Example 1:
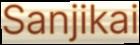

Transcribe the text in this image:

Sanjikai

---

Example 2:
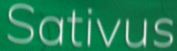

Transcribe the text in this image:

Sativus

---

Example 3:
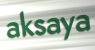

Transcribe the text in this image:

aksaya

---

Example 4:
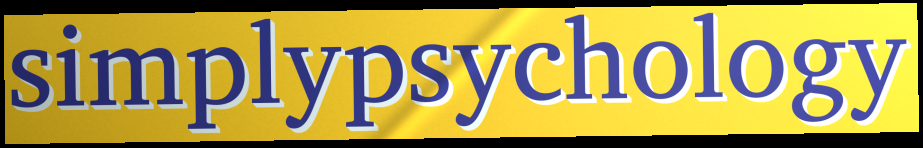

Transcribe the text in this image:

simplypsychology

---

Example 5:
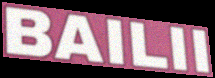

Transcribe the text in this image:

BAILII